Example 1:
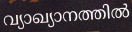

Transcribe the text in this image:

വ്യാഖ്യാനത്തിൽ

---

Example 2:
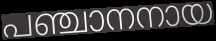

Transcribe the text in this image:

പഞ്ചാനനായ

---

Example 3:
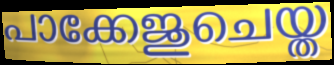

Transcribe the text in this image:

പാക്കേജുചെയ്ത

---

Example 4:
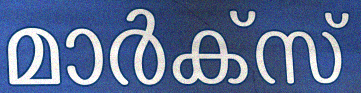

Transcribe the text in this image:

മാർക്‌സ്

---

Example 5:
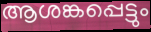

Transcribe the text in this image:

ആശങ്കപ്പെട്ടും